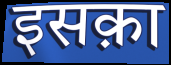
इसक़ा